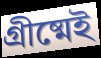
গ্রীষ্মেই